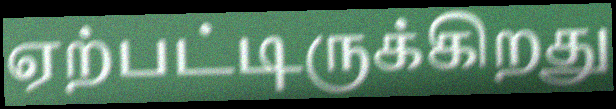
ஏற்பட்டிருக்கிறது